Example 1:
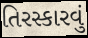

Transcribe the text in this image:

તિરસ્કારવું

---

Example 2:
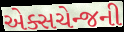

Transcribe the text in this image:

એક્સચેન્જની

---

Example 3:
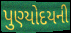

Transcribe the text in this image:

પુણ્યોદયની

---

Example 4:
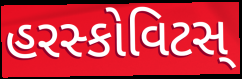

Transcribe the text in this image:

હરસ્કોવિટસ્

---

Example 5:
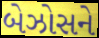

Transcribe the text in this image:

બેઝોસને